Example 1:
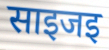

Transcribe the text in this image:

साइजइ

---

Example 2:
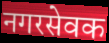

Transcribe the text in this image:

नगरसेवक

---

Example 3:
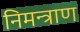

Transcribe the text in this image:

निमन्त्राण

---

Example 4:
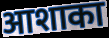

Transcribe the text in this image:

आशाका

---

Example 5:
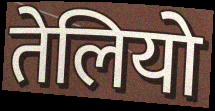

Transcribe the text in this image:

तेलियो